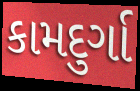
કામદુર્ગા